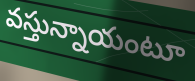
వస్తున్నాయంటూ